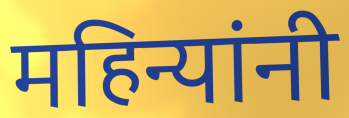
महिन्यांनी